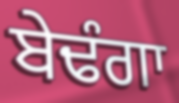
ਬੇਢੰਗਾ